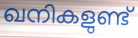
ഖനികളുണ്ട്